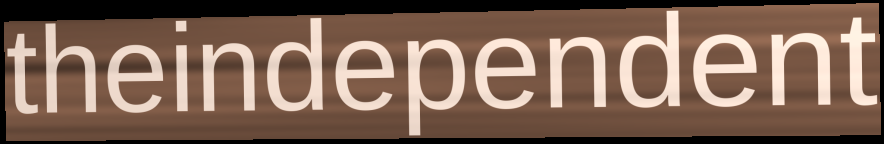
theindependent